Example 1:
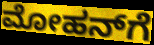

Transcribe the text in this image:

ಮೋಹನ್‌ಗೆ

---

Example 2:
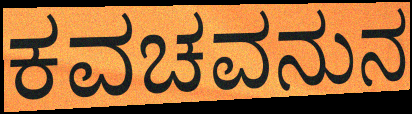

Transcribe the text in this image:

ಕವಚವನುನ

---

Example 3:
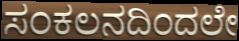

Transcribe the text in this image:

ಸಂಕಲನದಿಂದಲೇ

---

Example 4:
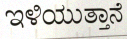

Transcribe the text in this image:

ಇಳಿಯುತ್ತಾನೆ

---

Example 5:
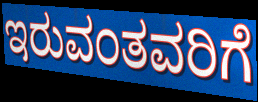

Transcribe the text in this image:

ಇರುವಂತವರಿಗೆ